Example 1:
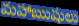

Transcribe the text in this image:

మహాఋషులు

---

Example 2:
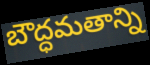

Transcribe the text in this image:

బౌద్ధమతాన్ని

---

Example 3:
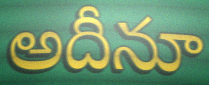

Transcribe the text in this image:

అదీనూ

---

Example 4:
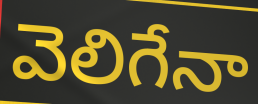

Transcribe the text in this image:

వెలిగేనా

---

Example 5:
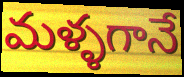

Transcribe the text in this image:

మళ్ళగానే